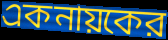
একনায়কের